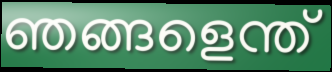
ഞങ്ങളെന്ത്